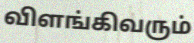
விளங்கிவரும்